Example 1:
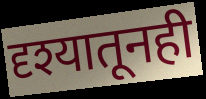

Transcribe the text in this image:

दृश्यातूनही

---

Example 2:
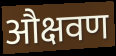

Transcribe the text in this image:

औक्षवण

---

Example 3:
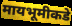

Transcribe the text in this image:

मायभूमीकडे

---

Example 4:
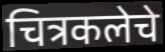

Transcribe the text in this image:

चित्रकलेचे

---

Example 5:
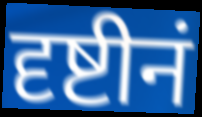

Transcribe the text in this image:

दृष्टीनं